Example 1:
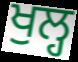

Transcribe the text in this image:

ਖੁਲ੍ਹ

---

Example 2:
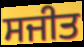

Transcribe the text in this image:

ਸਜੀਤ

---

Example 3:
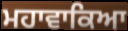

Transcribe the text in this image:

ਮਹਾਵਾਕਿਆ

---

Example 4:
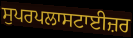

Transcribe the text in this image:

ਸੁਪਰਪਲਾਸਟਾਈਜ਼ਰ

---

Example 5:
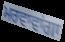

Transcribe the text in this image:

ਮਰਵਾਵਾਂਗਾ